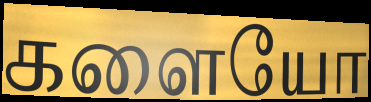
களையோ